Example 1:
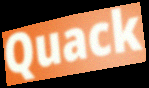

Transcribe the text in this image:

Quack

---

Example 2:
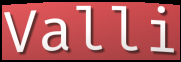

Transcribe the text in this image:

Valli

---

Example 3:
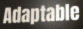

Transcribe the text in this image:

Adaptable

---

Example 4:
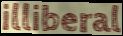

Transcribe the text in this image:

illiberal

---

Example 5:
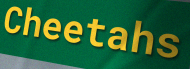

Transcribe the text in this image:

Cheetahs